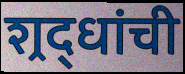
श्रद्धांची